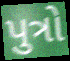
પુત્રો